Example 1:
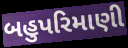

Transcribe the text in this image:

બહુપરિમાણી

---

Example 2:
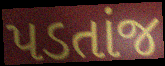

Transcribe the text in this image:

પડતાંજ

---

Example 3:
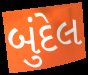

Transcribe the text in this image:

બુંદેલ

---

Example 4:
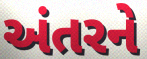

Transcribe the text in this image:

અંતરને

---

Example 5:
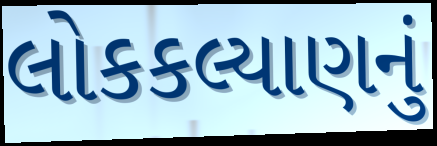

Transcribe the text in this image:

લોકકલ્યાણનું